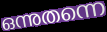
ഒന്നുതന്നെ